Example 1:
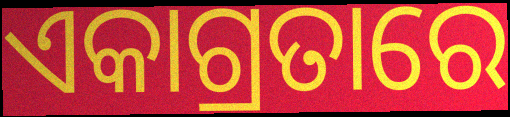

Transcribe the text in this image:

ଏକାଗ୍ରତାରେ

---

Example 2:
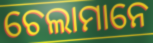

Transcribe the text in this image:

ଚେଲାମାନେ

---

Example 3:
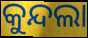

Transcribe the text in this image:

କୁନ୍ଦଲା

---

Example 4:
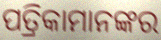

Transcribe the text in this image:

ପତ୍ରିକାମାନଙ୍କର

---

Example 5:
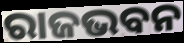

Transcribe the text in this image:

ରାଜଭବନ